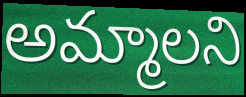
అమ్మాలని